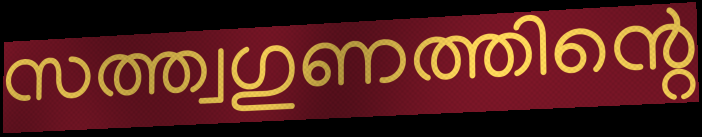
സത്ത്വഗുണത്തിന്റെ